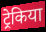
ट्रेकिया